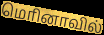
மெரினாவில்